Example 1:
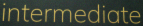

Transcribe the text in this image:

intermediate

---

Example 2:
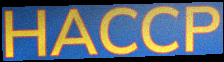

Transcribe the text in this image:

HACCP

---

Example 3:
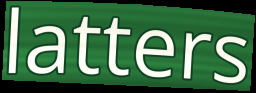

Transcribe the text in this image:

latters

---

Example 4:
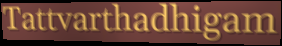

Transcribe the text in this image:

Tattvarthadhigam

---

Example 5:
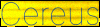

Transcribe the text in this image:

Cereus